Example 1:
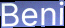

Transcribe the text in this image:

Beni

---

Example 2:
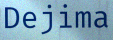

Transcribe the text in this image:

Dejima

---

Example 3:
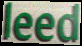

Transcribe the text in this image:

leed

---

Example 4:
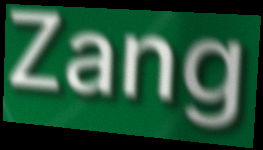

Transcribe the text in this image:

Zang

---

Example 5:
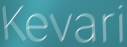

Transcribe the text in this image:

Kevari